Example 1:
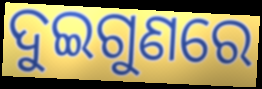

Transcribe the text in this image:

ଦୁଇଗୁଣରେ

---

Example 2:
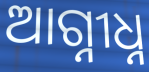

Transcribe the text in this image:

ଆଗ୍ନୀଧ୍ନ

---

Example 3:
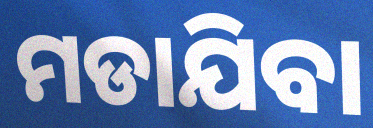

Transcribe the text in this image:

ମଡାଯିବା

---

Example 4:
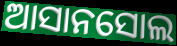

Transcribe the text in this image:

ଆସାନସୋଲ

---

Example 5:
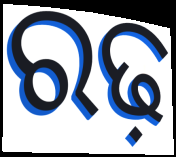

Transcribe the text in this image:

ରଢ଼